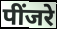
पींजरे